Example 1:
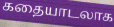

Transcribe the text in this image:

கதையாடலாக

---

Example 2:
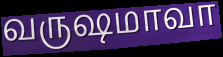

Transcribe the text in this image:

வருஷமாவா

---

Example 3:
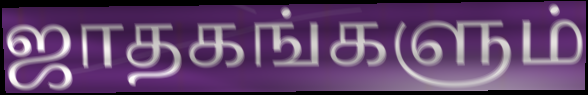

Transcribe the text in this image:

ஜாதகங்களும்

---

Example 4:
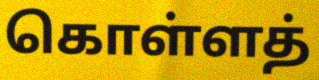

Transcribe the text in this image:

கொள்ளத்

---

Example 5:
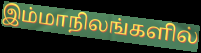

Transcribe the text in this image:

இம்மாநிலங்களில்